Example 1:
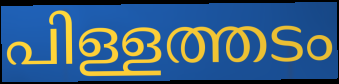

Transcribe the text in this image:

പിള്ളത്തടം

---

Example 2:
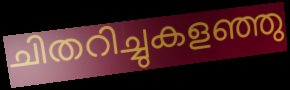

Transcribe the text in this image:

ചിതറിച്ചുകളഞ്ഞു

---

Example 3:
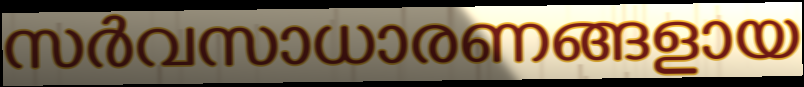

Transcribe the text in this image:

സർവസാധാരണങ്ങളായ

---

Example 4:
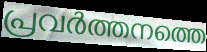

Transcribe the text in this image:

പ്രവർത്തനത്തെ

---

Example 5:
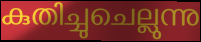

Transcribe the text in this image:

കുതിച്ചുചെല്ലുന്നു